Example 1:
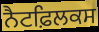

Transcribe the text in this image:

ਨੈਟਫ਼ਿਲਕਸ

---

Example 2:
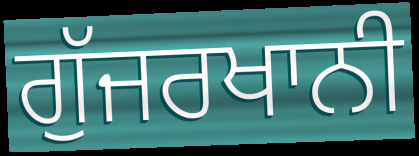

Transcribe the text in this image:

ਗੁੱਜਰਖਾਨੀ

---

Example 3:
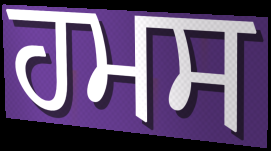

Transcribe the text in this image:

ਹਮਸ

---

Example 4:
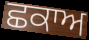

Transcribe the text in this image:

ਛਕਾਅ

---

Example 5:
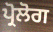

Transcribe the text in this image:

ਪ੍ਰੋਲੋਗ